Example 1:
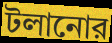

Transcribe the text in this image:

টলানোর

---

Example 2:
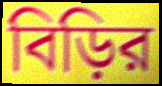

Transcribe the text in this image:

বিড়ির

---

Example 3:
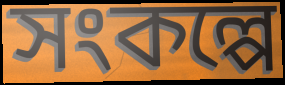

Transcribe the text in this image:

সংকল্পে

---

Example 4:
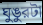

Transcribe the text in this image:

ঘুঙুরটা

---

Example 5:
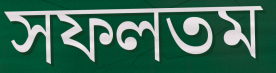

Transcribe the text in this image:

সফলতম